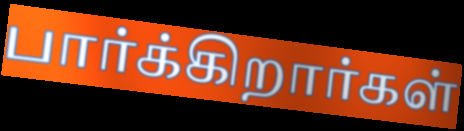
பார்க்கிறார்கள்